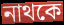
নাথকে